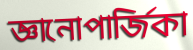
জ্ঞানোপার্জিকা